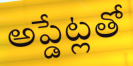
అప్డేట్లతో